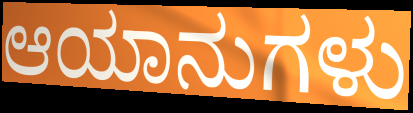
ಆಯಾನುಗಳು